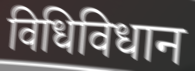
विधिविधान